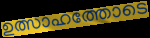
ഉത്സാഹത്തോടെ